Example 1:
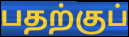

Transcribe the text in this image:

பதற்குப்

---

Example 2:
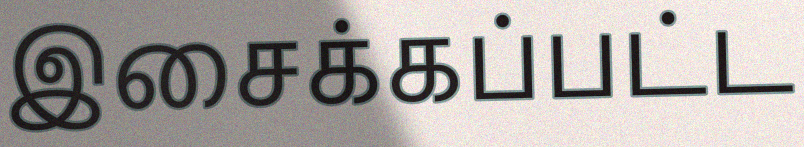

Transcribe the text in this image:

இசைக்கப்பட்ட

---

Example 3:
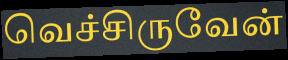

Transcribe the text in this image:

வெச்சிருவேன்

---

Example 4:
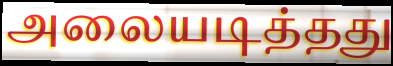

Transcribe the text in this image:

அலையடித்தது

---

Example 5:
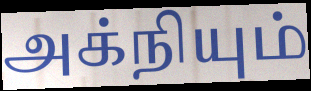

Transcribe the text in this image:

அக்நியும்